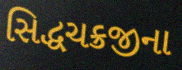
સિદ્ધચક્રજીના